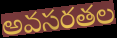
అవసరతల